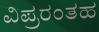
ವಿಪ್ರರಂತಹ